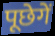
पूछेगें